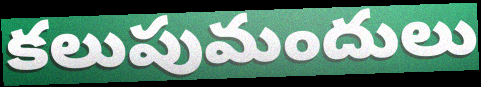
కలుపుమందులు